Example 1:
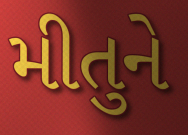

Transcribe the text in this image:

મીતુને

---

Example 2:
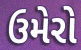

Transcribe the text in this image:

ઉમેરો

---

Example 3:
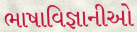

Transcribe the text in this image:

ભાષાવિજ્ઞાનીઓ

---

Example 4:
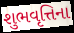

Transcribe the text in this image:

શુભવૃત્તિના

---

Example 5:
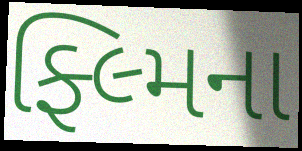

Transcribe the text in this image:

ફ્લ્મિના